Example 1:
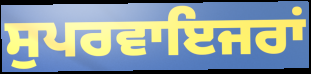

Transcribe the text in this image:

ਸੁਪਰਵਾਇਜਰਾਂ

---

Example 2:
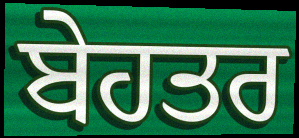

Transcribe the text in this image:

ਬੇਹਤਰ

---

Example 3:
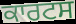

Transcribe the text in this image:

ਕਾਰਟਸ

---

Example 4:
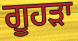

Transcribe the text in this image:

ਗੂਹੜਾ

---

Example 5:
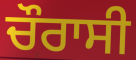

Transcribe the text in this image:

ਚੌਰਾਸੀ